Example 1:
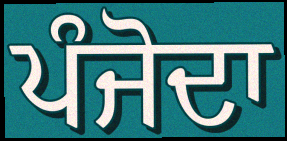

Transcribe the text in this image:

ਪੰਜੋਦਾ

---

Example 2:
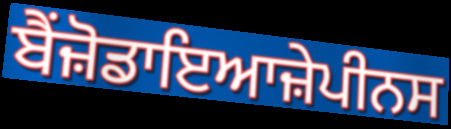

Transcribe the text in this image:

ਬੈਂਜ਼ੋਡਾਇਆਜ਼ੇਪੀਨਸ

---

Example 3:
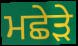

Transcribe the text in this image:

ਮਛੇੜੇ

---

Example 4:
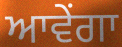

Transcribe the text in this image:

ਆਵੇਂਗਾ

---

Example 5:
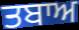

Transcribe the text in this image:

ਤਬਾਅ